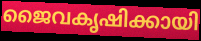
ജൈവകൃഷിക്കായി